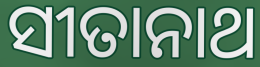
ସୀତାନାଥ